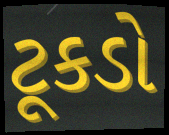
ટૂકડો